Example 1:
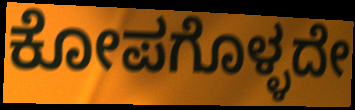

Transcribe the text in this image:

ಕೋಪಗೊಳ್ಳದೇ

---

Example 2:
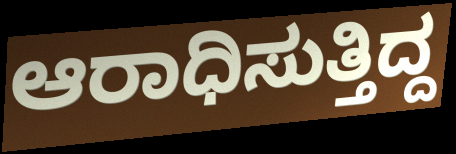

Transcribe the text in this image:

ಆರಾಧಿಸುತ್ತಿದ್ದ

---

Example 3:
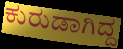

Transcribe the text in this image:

ಕುರುಡಾಗಿದ್ದ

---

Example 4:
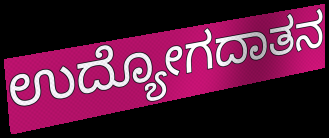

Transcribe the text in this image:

ಉದ್ಯೋಗದಾತನ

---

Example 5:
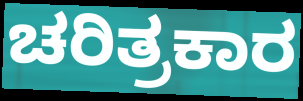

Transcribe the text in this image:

ಚರಿತ್ರಕಾರ